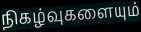
நிகழ்வுகளையும்